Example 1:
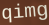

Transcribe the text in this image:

qimg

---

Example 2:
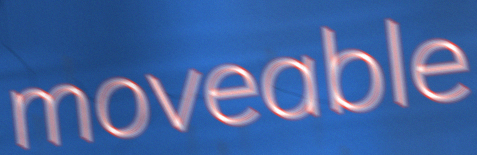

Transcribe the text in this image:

moveable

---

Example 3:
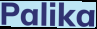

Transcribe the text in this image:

Palika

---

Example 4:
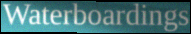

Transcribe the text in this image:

Waterboardings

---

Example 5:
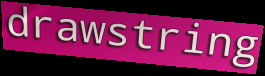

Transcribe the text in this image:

drawstring